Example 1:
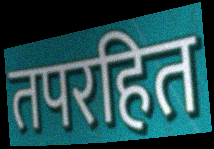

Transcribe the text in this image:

तपरहित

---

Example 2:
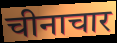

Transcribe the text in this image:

चीनाचार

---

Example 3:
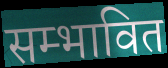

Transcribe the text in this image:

सम्भावित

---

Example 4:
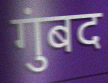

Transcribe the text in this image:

गुंबद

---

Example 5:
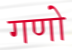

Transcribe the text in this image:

गणो